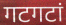
गटगटां